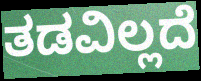
ತಡವಿಲ್ಲದೆ